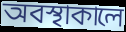
অবস্থাকালে